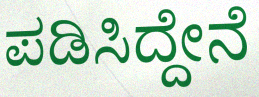
ಪಡಿಸಿದ್ದೇನೆ